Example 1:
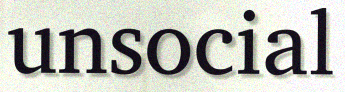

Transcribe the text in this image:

unsocial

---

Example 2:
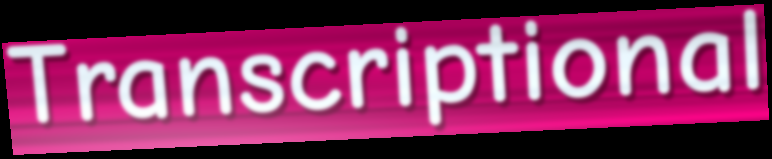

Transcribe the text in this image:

Transcriptional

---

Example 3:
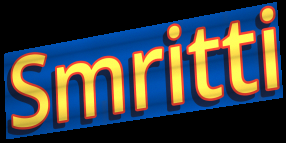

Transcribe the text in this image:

Smritti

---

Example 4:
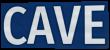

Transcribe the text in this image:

CAVE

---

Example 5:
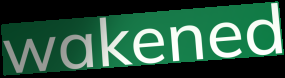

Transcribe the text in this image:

wakened